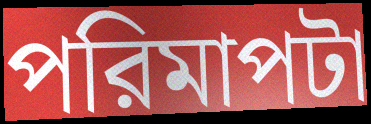
পরিমাপটা